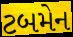
ટબમેન